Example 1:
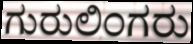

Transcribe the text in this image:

ಗುರುಲಿಂಗರು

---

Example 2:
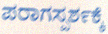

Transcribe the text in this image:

ಪರಾಗಸ್ಪರ್ಶಕ್ಕೆ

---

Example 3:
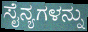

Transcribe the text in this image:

ಸೈನ್ಯಗಳನ್ನು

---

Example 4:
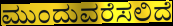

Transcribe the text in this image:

ಮುಂದುವರೆಸಲಿದೆ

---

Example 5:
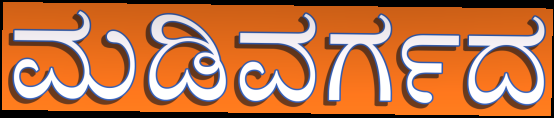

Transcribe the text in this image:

ಮಡಿವರ್ಗದ